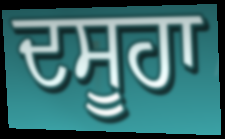
ਦਸੂਹਾ